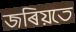
জৰিয়তে